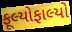
ફૂલ્યોફાલ્યો